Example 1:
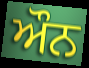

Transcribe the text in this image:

ਔਨ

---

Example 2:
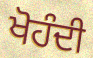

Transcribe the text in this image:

ਖੋਹੰਦੀ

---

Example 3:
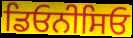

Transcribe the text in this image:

ਡਿਓਨੀਸਿਓ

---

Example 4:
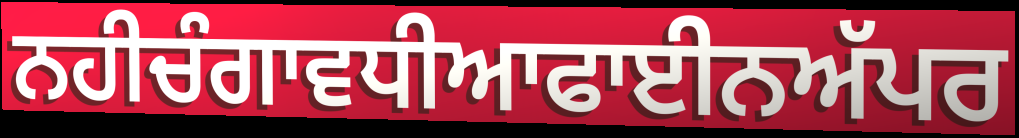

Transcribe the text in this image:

ਨਹੀਚੰਗਾਵਧੀਆਫਾਈਨਅੱਪਰ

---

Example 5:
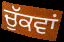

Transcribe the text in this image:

ਚੁੱਕਵਾਂ